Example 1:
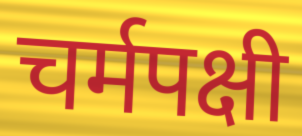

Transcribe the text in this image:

चर्मपक्षी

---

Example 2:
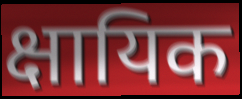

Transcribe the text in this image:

क्षायिक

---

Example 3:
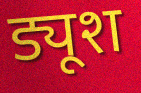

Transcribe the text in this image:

ड्यूश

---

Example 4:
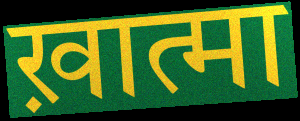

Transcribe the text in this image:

ख़ात्मा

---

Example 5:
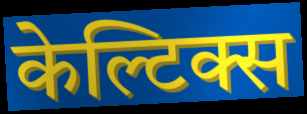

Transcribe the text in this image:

केल्टिक्स